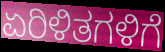
ಏರಿಳಿತಗಳಿಗೆ